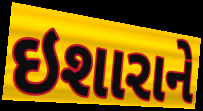
ઇશારાને